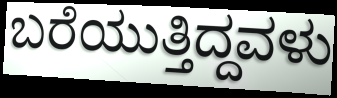
ಬರೆಯುತ್ತಿದ್ದವಳು